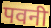
पवनी